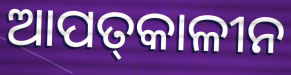
ଆପତ୍‌କାଳୀନ